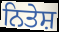
ਨਿਤੇਸ਼